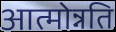
आत्मोन्नति